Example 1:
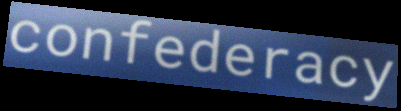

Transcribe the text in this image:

confederacy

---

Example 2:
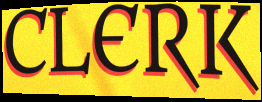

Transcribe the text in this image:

CLERK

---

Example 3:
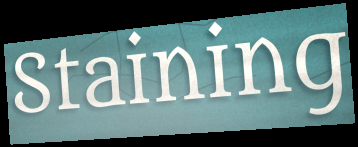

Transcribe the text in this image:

Staining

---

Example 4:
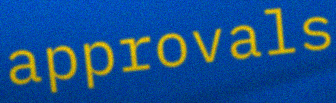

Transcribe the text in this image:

approvals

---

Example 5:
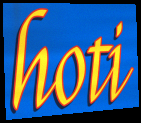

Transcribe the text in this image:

hoti